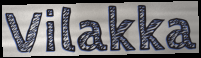
Vilakka